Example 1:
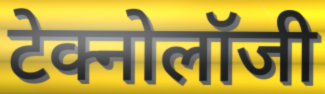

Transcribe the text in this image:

टेक्नोलॉजी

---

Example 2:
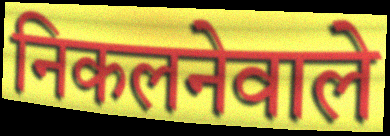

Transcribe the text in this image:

निकलनेवाले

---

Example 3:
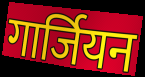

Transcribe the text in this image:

गार्जियन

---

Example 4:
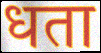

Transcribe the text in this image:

धता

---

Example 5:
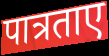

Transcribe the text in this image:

पात्रताए